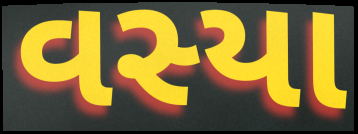
વસ્યા